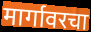
मार्गावरचा